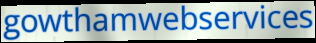
gowthamwebservices